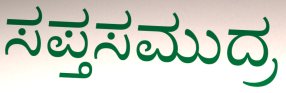
ಸಪ್ತಸಮುದ್ರ